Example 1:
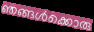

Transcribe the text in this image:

ഞങ്ങൾക്കൊരു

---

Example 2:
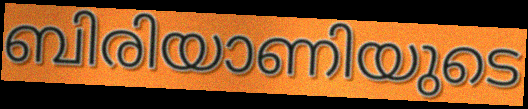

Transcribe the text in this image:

ബിരിയാണിയുടെ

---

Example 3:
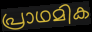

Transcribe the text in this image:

പ്രാഥമിക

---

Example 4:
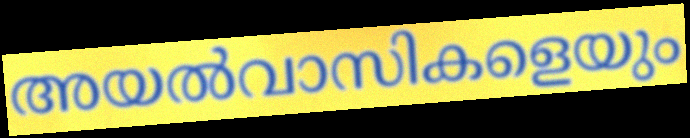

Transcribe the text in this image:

അയൽവാസികളെയും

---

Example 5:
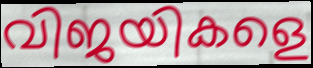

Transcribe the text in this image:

വിജയികളെ